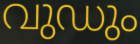
വുഡും